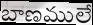
బాణములే